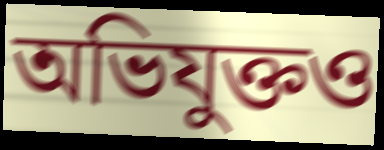
অভিযুক্তও